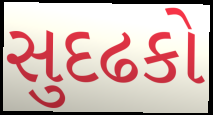
સુદઢકો